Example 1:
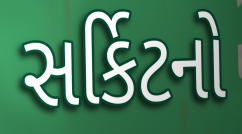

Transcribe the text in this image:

સર્કિટનો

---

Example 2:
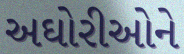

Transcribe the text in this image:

અઘોરીઓને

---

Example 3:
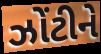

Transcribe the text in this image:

ઝોંટીને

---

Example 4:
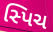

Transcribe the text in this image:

સ્પિચ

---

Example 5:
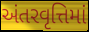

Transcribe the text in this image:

અંતરવૃત્તિમાં